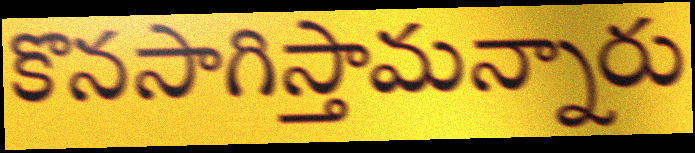
కొనసాగిస్తామన్నారు